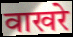
वाखरे